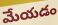
మేయడం